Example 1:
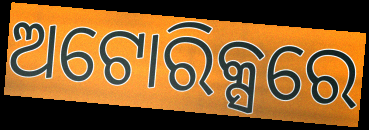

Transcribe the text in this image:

ଅଟୋରିକ୍ସରେ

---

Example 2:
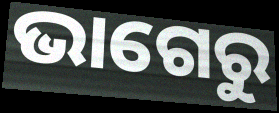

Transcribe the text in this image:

ଭାଗେରୁ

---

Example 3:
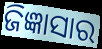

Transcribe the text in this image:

ଜିଜ୍ଞାସାର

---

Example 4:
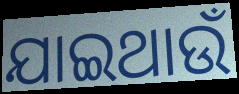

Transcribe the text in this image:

ଯାଇଥାଉଁ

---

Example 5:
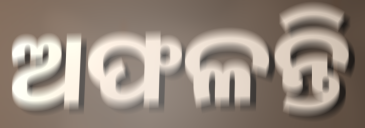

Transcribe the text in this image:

ଅଫଳନ୍ତି